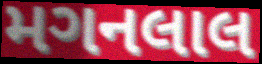
મગનલાલ